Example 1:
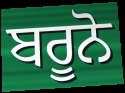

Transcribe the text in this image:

ਬਰੂਨੋ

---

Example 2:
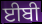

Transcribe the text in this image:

ਈਬੀ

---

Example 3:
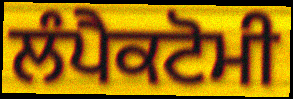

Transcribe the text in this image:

ਲੰਪੈਕਟੋਮੀ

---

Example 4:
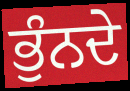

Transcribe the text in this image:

ਭੁੰਨਦੇ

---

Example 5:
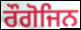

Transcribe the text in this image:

ਰੌਗੋਜਿਨ